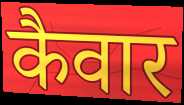
कैवार